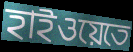
হাইওয়েতে